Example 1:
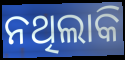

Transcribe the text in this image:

ନଥିଲାକି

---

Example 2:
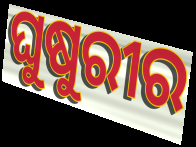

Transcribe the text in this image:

ଘୁଷୁରୀର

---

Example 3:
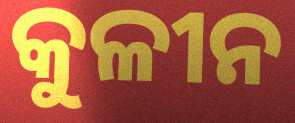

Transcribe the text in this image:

କୁଳୀନ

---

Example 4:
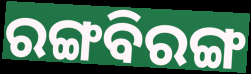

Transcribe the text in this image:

ରଙ୍ଗବିରଙ୍ଗ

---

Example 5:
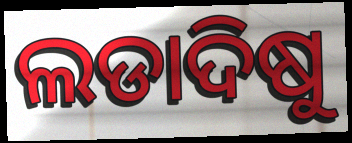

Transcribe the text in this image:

ଲଡାଦିଷୁ